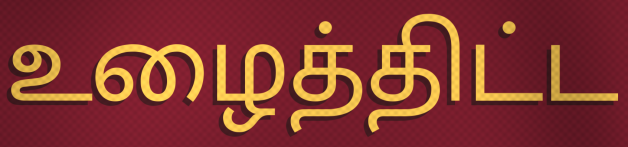
உழைத்திட்ட